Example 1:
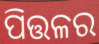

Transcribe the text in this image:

ପିତ୍ତଳର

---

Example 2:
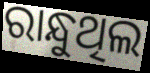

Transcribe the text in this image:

ରାନ୍ଧୁଥିଲ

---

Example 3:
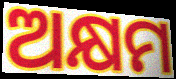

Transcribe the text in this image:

ଅକ୍ଷମ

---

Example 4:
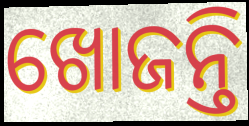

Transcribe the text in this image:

ଖୋଜନ୍ତି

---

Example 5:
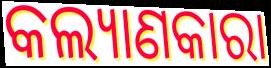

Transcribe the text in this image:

କଲ୍ୟାଣକାରା